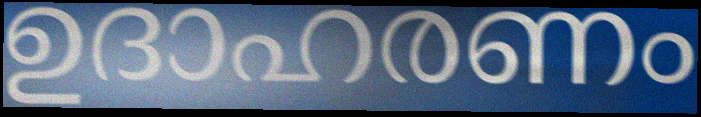
ഉദാഹരണം